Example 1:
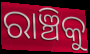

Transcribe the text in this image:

ରାଞ୍ଚିକୁ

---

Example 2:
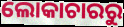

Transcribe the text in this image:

ଲୋକାଚାରରୁ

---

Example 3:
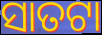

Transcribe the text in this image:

ସାତଟା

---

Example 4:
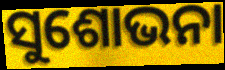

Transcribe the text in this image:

ସୁଶୋଭନା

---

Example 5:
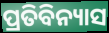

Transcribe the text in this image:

ପ୍ରତିବିନ୍ୟାସ